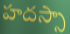
హదస్సా